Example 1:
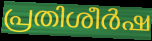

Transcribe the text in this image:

പ്രതിശീർഷ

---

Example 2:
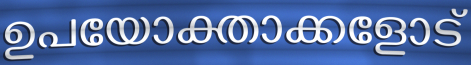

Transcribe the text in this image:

ഉപയോക്താക്കളോട്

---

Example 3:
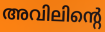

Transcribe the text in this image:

അവിലിന്റെ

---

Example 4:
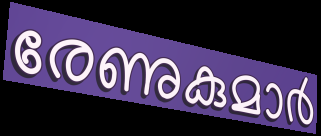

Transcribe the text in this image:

രേണുകുമാർ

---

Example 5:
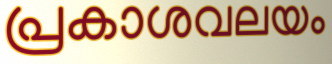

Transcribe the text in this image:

പ്രകാശവലയം